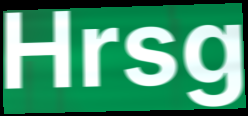
Hrsg